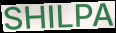
SHILPA